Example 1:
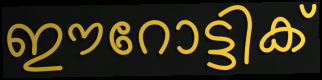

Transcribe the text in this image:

ഈറോട്ടിക്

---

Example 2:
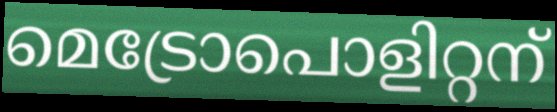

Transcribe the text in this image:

മെട്രോപൊളിറ്റന്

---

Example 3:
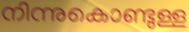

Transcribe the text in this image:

നിന്നുകൊണ്ടുള്ള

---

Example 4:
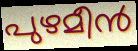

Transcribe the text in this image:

പുഴമീൻ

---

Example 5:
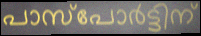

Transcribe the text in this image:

പാസ്പോർട്ടിന്